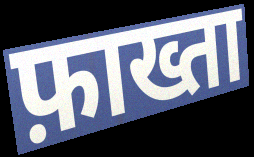
फ़ाख्ता